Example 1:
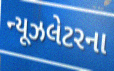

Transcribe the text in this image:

ન્યૂઝલેટરના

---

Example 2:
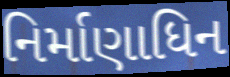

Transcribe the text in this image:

નિર્માણાધિન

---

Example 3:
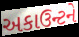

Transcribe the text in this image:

અકાઉન્ટને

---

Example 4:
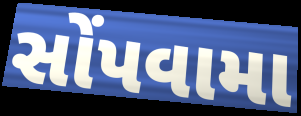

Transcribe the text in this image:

સોંપવામા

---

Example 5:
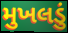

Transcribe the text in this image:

મુખલડું